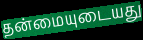
தன்மையுடையது